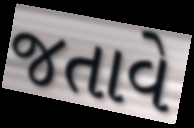
જતાવે